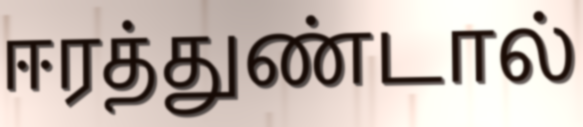
ஈரத்துண்டால்